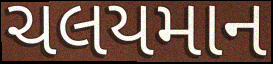
ચલયમાન